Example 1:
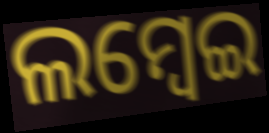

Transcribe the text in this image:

ଲମ୍ଵେଇ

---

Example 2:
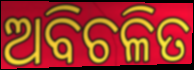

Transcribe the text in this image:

ଅବିଚଳିତ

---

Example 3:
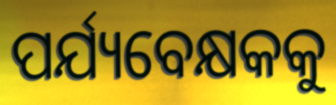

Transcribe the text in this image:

ପର୍ଯ୍ୟବେକ୍ଷକକୁ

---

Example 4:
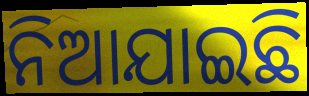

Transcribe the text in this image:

ନିଆଯାଇଛି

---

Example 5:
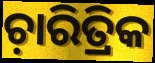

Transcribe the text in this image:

ଚ଼ାରିତ୍ରିକ